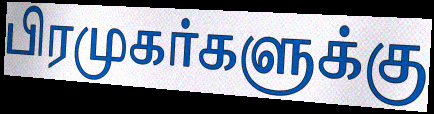
பிரமுகர்களுக்கு